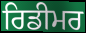
ਰਿਡੀਮਰ